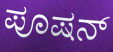
ಪೂಷನ್